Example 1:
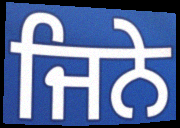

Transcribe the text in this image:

ਜਿਨੇ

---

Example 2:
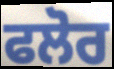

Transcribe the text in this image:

ਫਲੋਰ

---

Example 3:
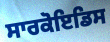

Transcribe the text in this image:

ਸਾਰਕੋਇਡਿਸ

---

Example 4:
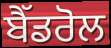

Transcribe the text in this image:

ਬੈੱਡਰੋਲ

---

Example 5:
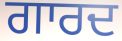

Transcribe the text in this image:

ਗਾਰਦ